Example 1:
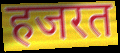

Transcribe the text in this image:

हजरत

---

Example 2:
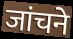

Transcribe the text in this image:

जांचने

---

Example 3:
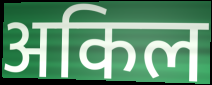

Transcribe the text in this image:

अकिल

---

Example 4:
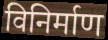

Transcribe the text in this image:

विनिर्माण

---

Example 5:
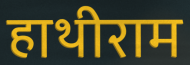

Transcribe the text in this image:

हाथीराम